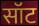
सॉट